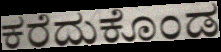
ಕರೆದುಕೊಂಡ